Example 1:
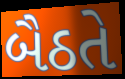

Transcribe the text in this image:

બૈઠતે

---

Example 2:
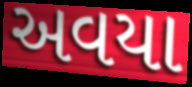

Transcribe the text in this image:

અવયા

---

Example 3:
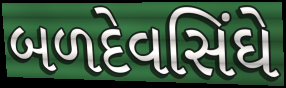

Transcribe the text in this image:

બળદેવસિંઘે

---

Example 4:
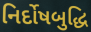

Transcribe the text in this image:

નિર્દોષબુદ્ધિ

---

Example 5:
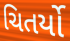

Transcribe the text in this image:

ચિતર્યો